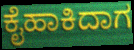
ಕೈಹಾಕಿದಾಗ